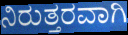
ನಿರುತ್ತರವಾಗಿ